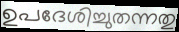
ഉപദേശിച്ചുതന്നതു